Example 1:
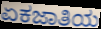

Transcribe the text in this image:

ಏಕಜಾತಿಯ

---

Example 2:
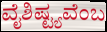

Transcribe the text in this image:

ವೈಶಿಷ್ಟ್ಯವೆಂಬ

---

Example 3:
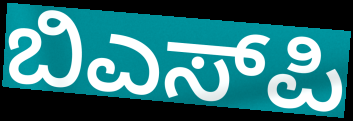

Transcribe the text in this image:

ಬಿಎಸ್‌ಪಿ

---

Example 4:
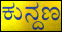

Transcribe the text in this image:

ಕುನ್ದಣ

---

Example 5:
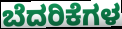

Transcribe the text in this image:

ಬೆದರಿಕೆಗಳ